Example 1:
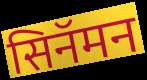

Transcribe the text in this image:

सिनॅमन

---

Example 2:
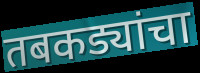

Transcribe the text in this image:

तबकड्यांचा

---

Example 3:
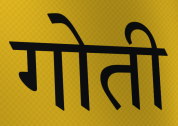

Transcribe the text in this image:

गोती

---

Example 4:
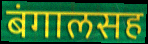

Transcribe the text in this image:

बंगालसह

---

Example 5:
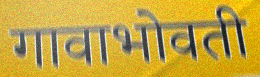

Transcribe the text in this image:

गावाभोवती